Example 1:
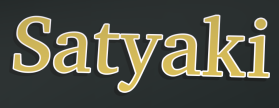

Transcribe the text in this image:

Satyaki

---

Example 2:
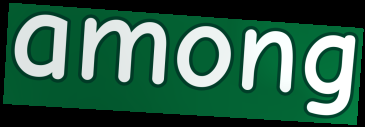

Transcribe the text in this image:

among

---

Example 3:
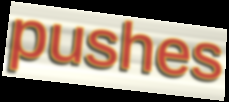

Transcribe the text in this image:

pushes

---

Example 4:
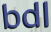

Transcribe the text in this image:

bdl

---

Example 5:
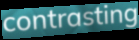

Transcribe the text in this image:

contrasting